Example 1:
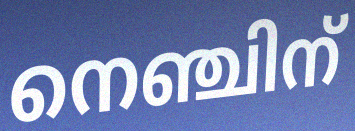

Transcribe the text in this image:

നെഞ്ചിന്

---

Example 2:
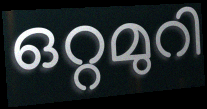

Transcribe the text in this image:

ഒറ്റമുറി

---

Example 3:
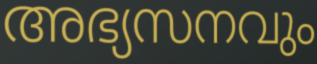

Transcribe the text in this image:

അഭ്യസനവും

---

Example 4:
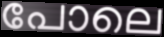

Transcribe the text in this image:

പോലെ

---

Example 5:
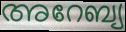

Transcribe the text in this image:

അറേബ്യ